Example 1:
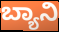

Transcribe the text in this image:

ಬ್ಯಾನಿ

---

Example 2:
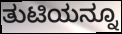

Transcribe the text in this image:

ತುಟಿಯನ್ನೂ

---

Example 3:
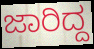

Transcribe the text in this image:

ಜಾರಿದ್ದ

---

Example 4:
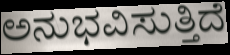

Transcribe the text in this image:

ಅನುಭವಿಸುತ್ತಿದೆ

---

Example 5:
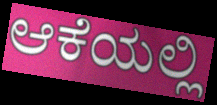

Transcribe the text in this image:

ಆಕೆಯಲ್ಲಿ